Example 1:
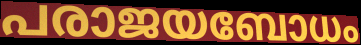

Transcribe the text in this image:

പരാജയബോധം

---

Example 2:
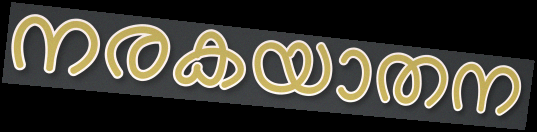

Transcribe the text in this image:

നരകയാതന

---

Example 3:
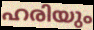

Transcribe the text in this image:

ഹരിയും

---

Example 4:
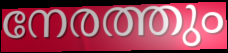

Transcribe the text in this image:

നേരത്തും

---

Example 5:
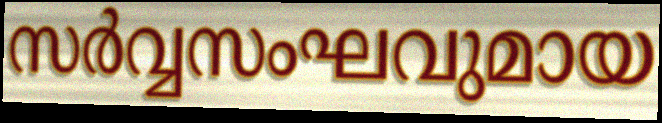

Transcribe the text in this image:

സർവ്വസംഘവുമായ